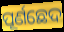
ପୂର୍ଣଛେଦ